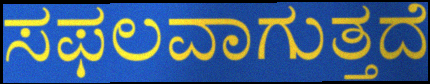
ಸಫಲವಾಗುತ್ತದೆ